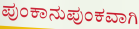
ಪುಂಕಾನುಪುಂಕವಾಗಿ